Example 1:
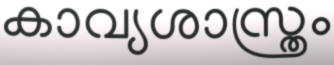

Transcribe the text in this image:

കാവ്യശാസ്ത്രം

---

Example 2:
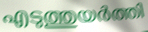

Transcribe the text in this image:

എടുത്തുയർത്തി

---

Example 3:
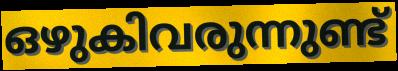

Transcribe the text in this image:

ഒഴുകിവരുന്നുണ്ട്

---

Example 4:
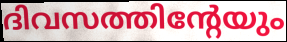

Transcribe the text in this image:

ദിവസത്തിന്റേയും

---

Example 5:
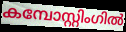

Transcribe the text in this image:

കമ്പോസ്റ്റിംഗിൽ